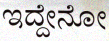
ಇದ್ದೇನೋ